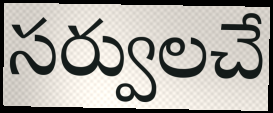
సర్వులచే